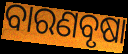
ବାରଣବୃଷା